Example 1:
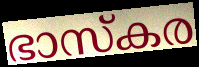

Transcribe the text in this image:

ഭാസ്കര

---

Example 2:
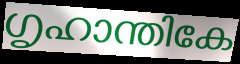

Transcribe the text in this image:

ഗൃഹാന്തികേ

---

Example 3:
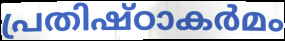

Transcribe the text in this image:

പ്രതിഷ്ഠാകർമം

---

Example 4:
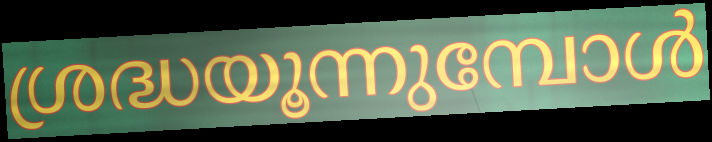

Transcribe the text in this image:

ശ്രദ്ധയൂന്നുമ്പോൾ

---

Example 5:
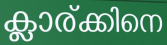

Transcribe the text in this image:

ക്ലാര്ക്കിനെ